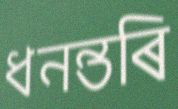
ধনন্তৰি